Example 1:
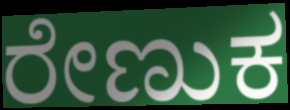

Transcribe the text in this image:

ರೇಣುಕ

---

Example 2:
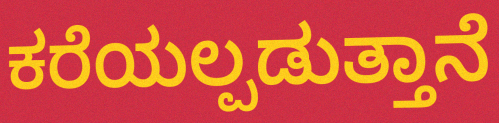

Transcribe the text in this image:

ಕರೆಯಲ್ಪಡುತ್ತಾನೆ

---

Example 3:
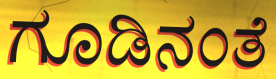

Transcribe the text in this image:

ಗೂಡಿನಂತೆ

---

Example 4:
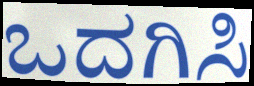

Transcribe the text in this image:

ಒದಗಿಸಿ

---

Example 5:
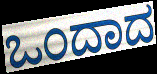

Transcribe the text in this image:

ಒಂದಾದ